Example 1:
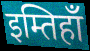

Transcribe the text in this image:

इम्तिहाँ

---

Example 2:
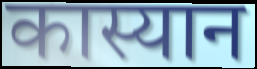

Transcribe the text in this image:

कास्यान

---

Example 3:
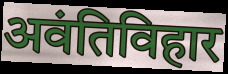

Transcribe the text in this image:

अवंतिविहार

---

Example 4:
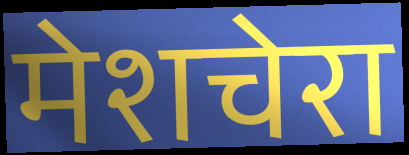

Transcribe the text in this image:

मेशचेरा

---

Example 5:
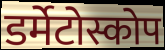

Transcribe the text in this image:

डर्मेटोस्कोप